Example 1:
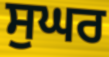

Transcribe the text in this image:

ਸੁਘਰ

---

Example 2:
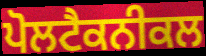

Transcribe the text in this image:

ਪੋਲਟੈਕਨੀਕਲ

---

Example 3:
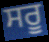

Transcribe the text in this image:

ਸਰੂ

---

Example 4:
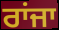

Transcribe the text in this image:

ਰਾਂਜਾ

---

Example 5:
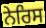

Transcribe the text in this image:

ਨੇਰਿਸ